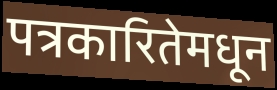
पत्रकारितेमधून